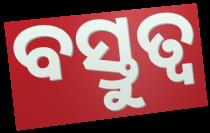
ବସ୍ତୁତ୍ୱ